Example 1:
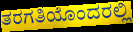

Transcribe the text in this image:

ತರಗತಿಯೊಂದರಲ್ಲಿ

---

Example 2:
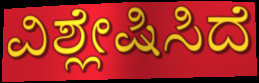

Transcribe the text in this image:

ವಿಶ್ಲೇಷಿಸಿದೆ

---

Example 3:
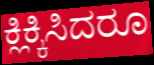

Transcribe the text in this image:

ಕ್ಲಿಕ್ಕಿಸಿದರೂ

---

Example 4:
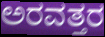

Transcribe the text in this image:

ಅರವತ್ತರ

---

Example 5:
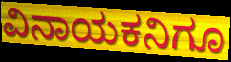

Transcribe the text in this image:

ವಿನಾಯಕನಿಗೂ